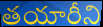
తయారీని